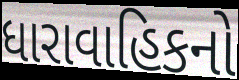
ધારાવાહિકનો